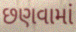
છણવામાં